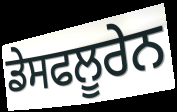
ਡੇਸਫਲੂਰੇਨ